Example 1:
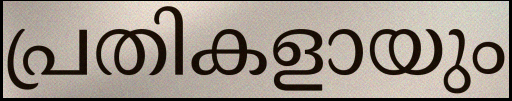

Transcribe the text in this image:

പ്രതികളായും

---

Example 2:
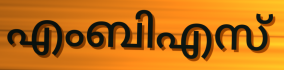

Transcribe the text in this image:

എംബിഎസ്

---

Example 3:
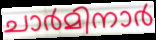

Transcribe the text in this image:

ചാർമിനാർ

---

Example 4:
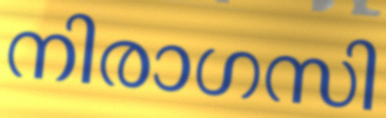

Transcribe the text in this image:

നിരാഗസി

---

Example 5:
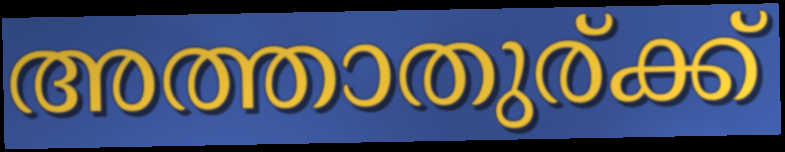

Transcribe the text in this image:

അത്താതുര്ക്ക്